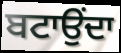
ਬਟਾਉਂਦਾ